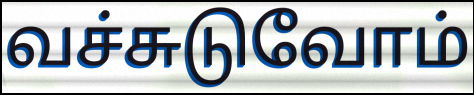
வச்சுடுவோம்